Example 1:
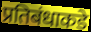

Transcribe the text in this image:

प्रतिबंधाकडे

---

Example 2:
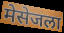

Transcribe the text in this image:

मेसेजला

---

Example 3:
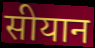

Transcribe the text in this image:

सीयान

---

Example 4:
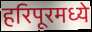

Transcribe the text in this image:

हरिपूरमध्ये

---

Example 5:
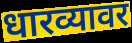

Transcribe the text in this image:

धारव्यावर